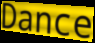
Dance